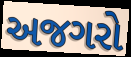
અજગરો